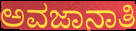
ಅವಜಾನಾತಿ